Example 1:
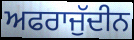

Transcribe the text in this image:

ਅਫਰਾਜੁੱਦੀਨ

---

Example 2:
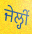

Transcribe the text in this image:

ਜੇਲ੍ਹੀਂ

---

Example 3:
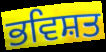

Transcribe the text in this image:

ਭਵਿਸ਼ਤ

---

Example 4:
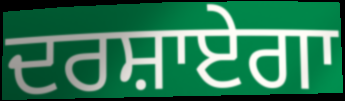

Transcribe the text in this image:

ਦਰਸ਼ਾਏਗਾ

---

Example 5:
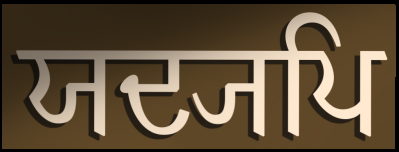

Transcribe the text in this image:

ਯਦ੍ਯਪਿ